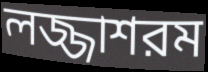
লজ্জাশরম